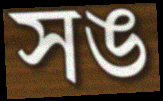
সঙ